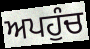
ਅਪਹੁੰਚ